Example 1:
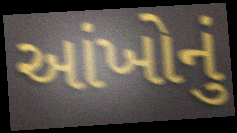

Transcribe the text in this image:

આંખોનું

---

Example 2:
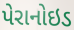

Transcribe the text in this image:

પેરાનોઇડ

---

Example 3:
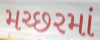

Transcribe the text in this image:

મચ્છરમાં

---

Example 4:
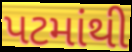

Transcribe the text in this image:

પટમાંથી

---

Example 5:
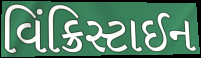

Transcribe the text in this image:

વિંક્રિસ્ટાઈન